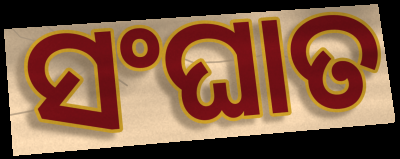
ସଂଘାତ